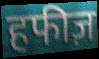
हफीज़